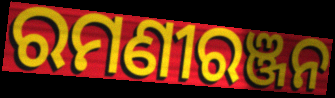
ରମଣୀରଞ୍ଜନ